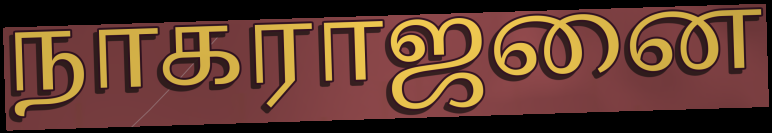
நாகராஜனை